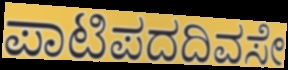
ಪಾಟಿಪದದಿವಸೇ